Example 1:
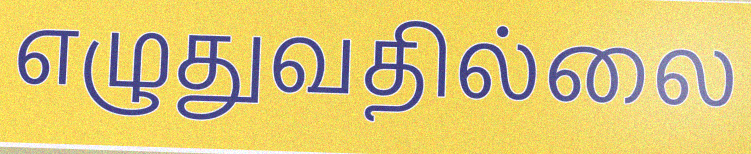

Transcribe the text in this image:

எழுதுவதில்லை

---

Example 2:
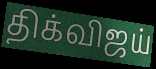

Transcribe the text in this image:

திக்விஜய்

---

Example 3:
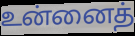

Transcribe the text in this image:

உன்னைத்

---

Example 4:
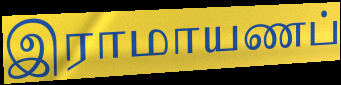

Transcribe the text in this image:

இராமாயணப்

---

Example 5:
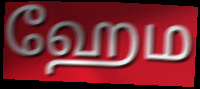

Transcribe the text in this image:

ஹேம